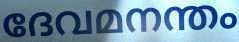
ദേവമനന്തം